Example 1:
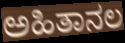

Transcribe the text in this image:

ಅಹಿತಾನಲ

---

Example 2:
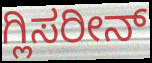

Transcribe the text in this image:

ಗ್ಲಿಸರೀನ್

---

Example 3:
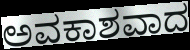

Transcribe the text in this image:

ಅವಕಾಶವಾದ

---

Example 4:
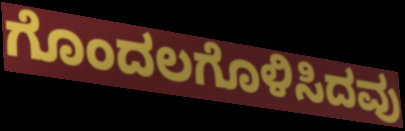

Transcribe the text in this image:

ಗೊಂದಲಗೊಳಿಸಿದವು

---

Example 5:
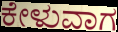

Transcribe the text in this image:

ಕೇಳುವಾಗ